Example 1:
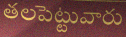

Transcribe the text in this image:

తలపెట్టువారు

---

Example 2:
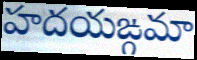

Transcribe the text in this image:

హదయఙ్గమా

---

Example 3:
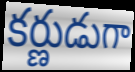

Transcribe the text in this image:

కర్ణుడుగా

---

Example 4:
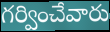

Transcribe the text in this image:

గర్వించేవారు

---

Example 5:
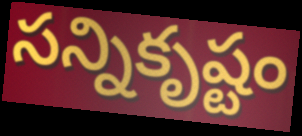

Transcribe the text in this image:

సన్నికృష్టం